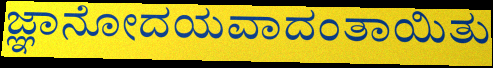
ಜ್ಞಾನೋದಯವಾದಂತಾಯಿತು